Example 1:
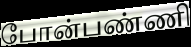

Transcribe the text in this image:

போன்பண்ணி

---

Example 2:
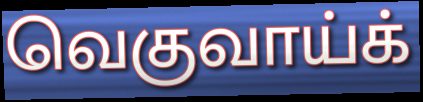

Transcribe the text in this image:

வெகுவாய்க்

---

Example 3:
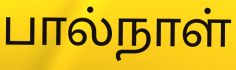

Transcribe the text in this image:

பால்நாள்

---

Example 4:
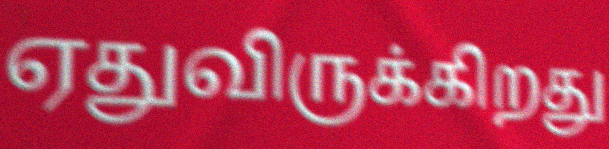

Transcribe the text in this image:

ஏதுவிருக்கிறது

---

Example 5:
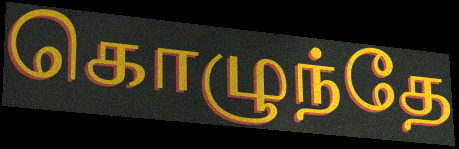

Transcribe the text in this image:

கொழுந்தே